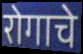
रोगाचे